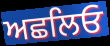
ਅਛਲਿਓ